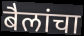
बैलांचा